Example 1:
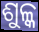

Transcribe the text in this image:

ଶୁଳ୍କ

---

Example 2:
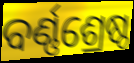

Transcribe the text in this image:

ବର୍ଣ୍ଣଶ୍ରେଷ୍ଠ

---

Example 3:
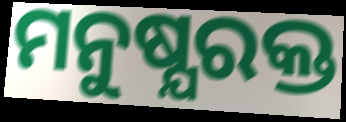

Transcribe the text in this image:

ମନୁଷ୍ଯରକ୍ତ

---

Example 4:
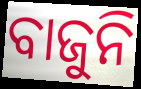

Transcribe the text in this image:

ବାଜୁନି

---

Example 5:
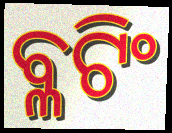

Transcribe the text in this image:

ବ୍ଳଟିଂ